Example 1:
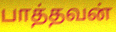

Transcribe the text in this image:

பாத்தவன்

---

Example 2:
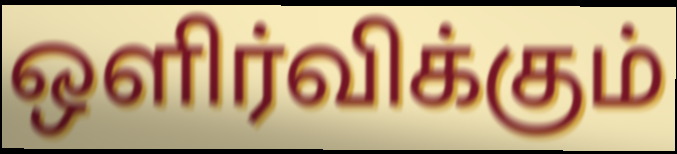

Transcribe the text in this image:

ஒளிர்விக்கும்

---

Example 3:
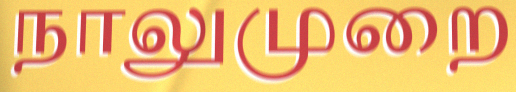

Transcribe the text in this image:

நாலுமுறை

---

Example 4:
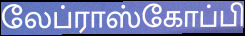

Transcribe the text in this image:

லேப்ராஸ்கோப்பி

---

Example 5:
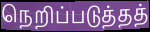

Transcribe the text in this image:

நெறிப்படுத்தத்